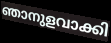
ഞാനുളവാക്കി